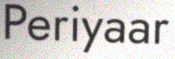
Periyaar